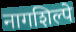
नागशिल्पे